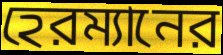
হেরম্যানের